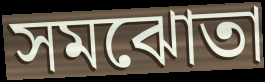
সমঝোতা